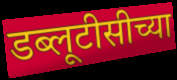
डब्लूटीसीच्या